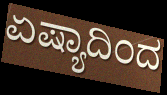
ಏಷ್ಯಾದಿಂದ